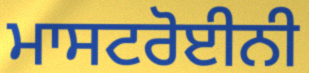
ਮਾਸਟਰੋਈਨੀ